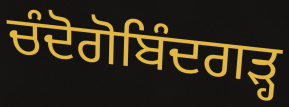
ਚੰਦੋਗੋਬਿੰਦਗੜ੍ਹ